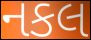
નકલ